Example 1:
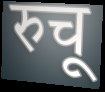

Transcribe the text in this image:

रुचू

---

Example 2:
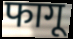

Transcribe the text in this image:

फागू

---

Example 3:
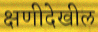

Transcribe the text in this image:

क्षणीदेखील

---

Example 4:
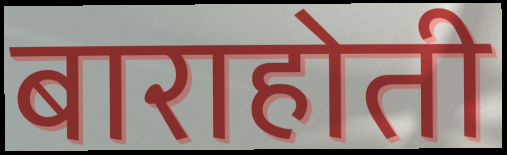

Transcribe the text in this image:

बाराहोती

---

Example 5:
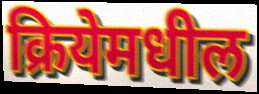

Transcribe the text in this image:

क्रियेमधील